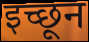
इच्छून